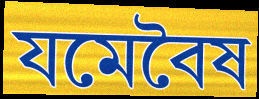
যমেবৈষ